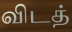
விடத்